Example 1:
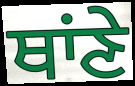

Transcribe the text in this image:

ਥਾਂਣੇ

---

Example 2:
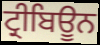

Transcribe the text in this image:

ਟ੍ਰੀਬਿਊਨ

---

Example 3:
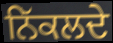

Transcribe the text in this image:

ਨਿੱਕਲਦੇ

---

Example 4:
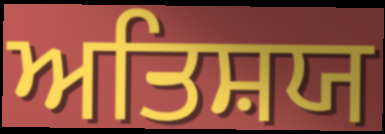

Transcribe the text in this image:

ਅਤਿਸ਼ਯ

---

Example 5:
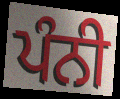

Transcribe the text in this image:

ਪੰਨੀ